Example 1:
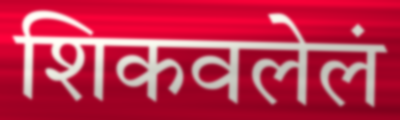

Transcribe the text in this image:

शिकवलेलं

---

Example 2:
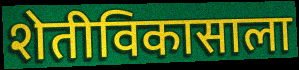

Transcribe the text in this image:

शेतीविकासाला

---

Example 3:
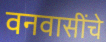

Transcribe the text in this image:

वनवासींचे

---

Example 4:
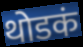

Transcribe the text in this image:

थोडकं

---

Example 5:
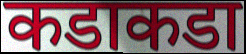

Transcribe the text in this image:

कडाकडा